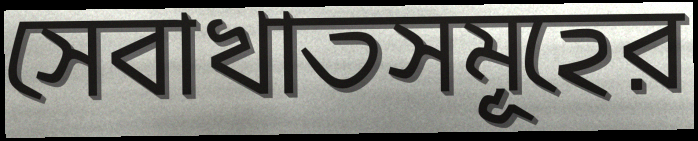
সেবাখাতসমূহের